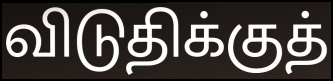
விடுதிக்குத்